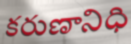
కరుణానిధి